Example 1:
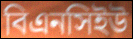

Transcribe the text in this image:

বিএনসিইউ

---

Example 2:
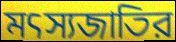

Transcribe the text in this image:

মৎস্যজাতির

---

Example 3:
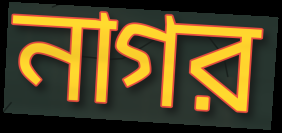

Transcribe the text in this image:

নাগর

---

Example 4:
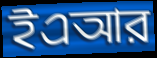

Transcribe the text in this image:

ইএআর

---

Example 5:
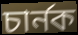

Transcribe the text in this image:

চার্নক